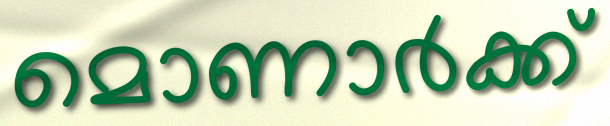
മൊണാർക്ക്